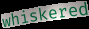
whiskered